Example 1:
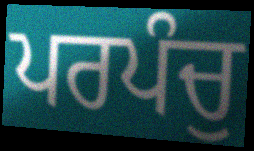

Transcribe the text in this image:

ਪਰਪੰਚੁ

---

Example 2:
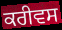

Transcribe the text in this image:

ਕਰੀਵਸ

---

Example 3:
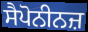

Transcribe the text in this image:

ਸੈਪੋਨੀਨਜ਼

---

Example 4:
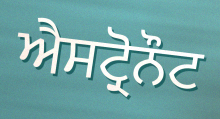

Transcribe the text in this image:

ਐਸਟ੍ਰੋਨੌਟ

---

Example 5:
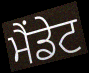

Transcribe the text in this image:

ਮੈਂਡੇਟ